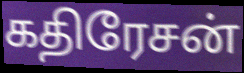
கதிரேசன்